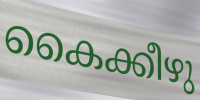
കൈക്കീഴു